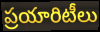
ప్రయారిటీలు